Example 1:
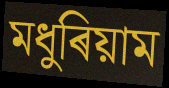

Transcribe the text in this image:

মধুৰিয়াম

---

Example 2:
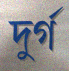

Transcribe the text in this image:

দুৰ্গ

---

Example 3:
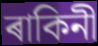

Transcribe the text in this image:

ৰাকিনী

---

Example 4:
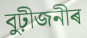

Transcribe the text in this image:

বুঢ়ীজনীৰ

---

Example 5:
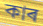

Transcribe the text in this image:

কাৰ